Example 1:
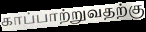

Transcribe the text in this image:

காப்பாற்றுவதற்கு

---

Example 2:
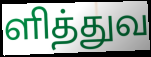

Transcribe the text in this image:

ளித்துவ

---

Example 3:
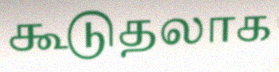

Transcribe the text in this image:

கூடுதலாக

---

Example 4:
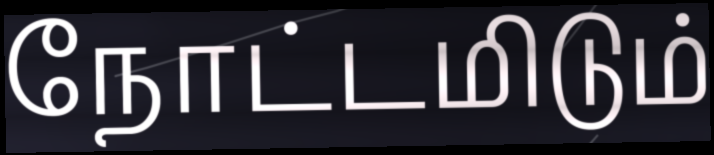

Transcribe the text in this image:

நோட்டமிடும்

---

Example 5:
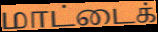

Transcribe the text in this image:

மாட்டைக்